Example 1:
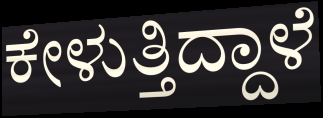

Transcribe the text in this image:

ಕೇಳುತ್ತಿದ್ದಾಳೆ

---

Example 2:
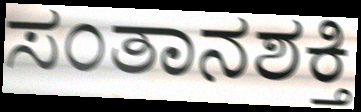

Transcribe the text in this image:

ಸಂತಾನಶಕ್ತಿ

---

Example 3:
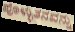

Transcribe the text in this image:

ಪೊಳ್ಳುತನವನ್ನು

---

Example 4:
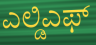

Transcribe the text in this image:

ಎಲ್ಡಿಎಫ್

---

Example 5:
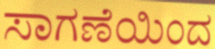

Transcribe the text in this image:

ಸಾಗಣೆಯಿಂದ